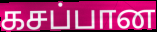
கசப்பான